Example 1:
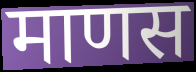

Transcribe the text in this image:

माणस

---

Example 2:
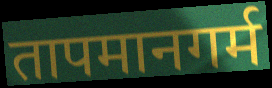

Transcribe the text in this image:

तापमानगर्म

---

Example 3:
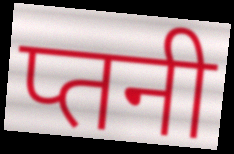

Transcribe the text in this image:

प्तनी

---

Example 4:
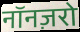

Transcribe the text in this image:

नॉनज़रो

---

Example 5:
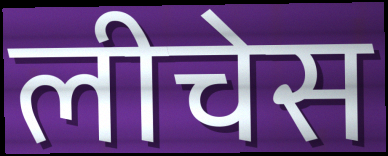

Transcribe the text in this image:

लीचेस